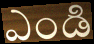
ఎండి